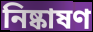
নিষ্কাষণ